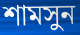
শামসুন